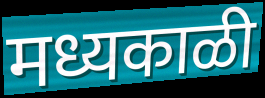
मध्यकाळी